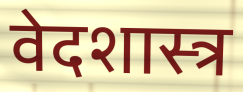
वेदशास्त्र